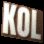
KOL